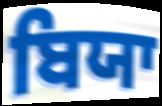
ਬਿਯਾ